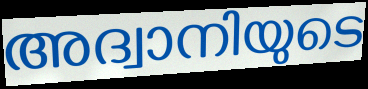
അദ്വാനിയുടെ